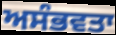
ਅਸੰਭਵਤਾ